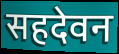
सहदेवन